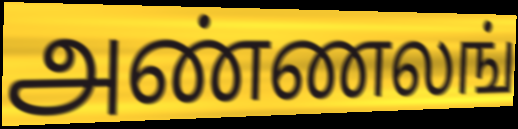
அண்ணலங்